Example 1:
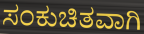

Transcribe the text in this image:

ಸಂಕುಚಿತವಾಗಿ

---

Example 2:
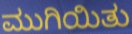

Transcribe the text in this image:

ಮುಗಿಯಿತು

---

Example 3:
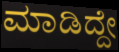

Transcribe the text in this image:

ಮಾಡಿದ್ದೇ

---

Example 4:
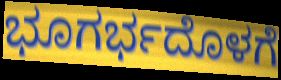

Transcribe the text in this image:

ಭೂಗರ್ಭದೊಳಗೆ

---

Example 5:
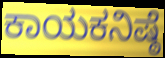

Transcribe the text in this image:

ಕಾಯಕನಿಷ್ಠೆ